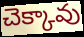
చెక్కావు